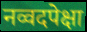
नव्वदपेक्षा